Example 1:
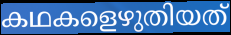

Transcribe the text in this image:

കഥകളെഴുതിയത്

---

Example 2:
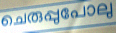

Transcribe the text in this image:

ചെരുപ്പുപോലു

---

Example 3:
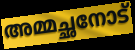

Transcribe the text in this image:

അമ്മച്ഛനോട്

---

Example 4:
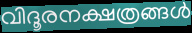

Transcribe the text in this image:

വിദൂരനക്ഷത്രങ്ങൾ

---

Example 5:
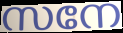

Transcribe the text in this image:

സനേ